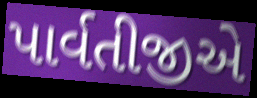
પાર્વતીજીએ